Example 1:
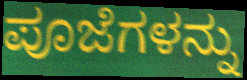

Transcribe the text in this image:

ಪೂಜೆಗಳನ್ನು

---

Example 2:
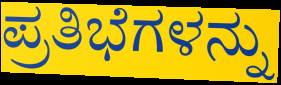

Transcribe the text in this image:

ಪ್ರತಿಭೆಗಳನ್ನು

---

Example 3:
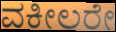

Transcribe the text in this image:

ವಕೀಲರೇ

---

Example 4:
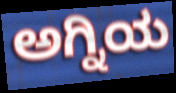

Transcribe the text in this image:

ಅಗ್ನಿಯ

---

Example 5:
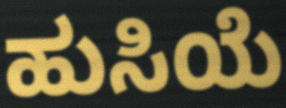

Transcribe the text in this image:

ಹುಸಿಯೆ